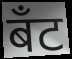
बँट